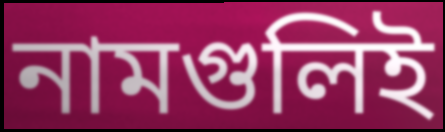
নামগুলিই